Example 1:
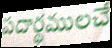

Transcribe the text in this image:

పదార్థములచే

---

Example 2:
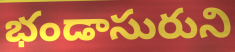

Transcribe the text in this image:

భండాసురుని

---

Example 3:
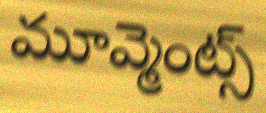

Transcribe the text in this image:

మూవ్మెంట్స్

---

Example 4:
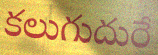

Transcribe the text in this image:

కలుగుదురే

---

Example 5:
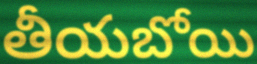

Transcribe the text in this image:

తీయబోయి